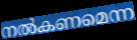
നൽകണമെന്ന